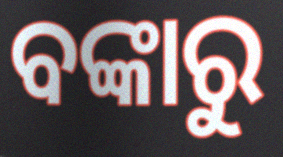
ବଙ୍କାରୁ